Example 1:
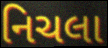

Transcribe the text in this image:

નિચલા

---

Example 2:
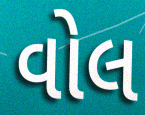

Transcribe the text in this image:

વોલ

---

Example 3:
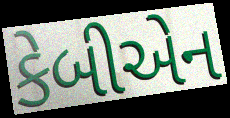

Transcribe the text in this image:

કેબીએન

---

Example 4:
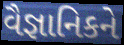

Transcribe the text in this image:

વૈજ્ઞાનિકને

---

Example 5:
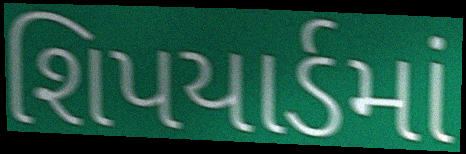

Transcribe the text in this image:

શિપયાર્ડમાં